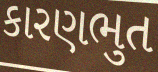
કારણભુત